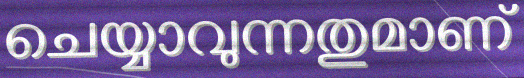
ചെയ്യാവുന്നതുമാണ്